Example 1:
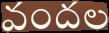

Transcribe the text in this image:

వందల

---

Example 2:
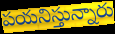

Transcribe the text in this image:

పయనిస్తున్నారు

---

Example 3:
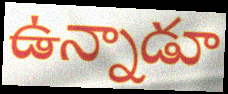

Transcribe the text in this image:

ఉన్నాడూ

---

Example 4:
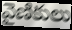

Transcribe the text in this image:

వైణికులు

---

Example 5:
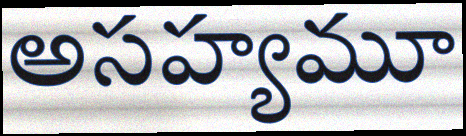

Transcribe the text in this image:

అసహ్యమూ